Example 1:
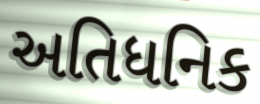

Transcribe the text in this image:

અતિધનિક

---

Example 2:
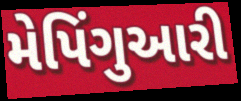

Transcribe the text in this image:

મેપિંગુઆરી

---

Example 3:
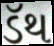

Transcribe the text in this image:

ડૅથ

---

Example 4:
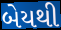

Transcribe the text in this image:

બેયથી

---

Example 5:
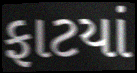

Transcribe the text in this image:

ફાટયાં